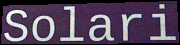
Solari